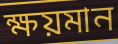
ক্ষয়মান